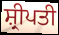
ਸ਼੍ਰੀਪਤੀ